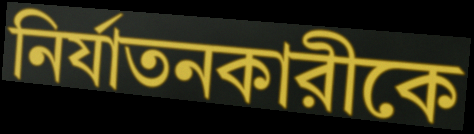
নির্যাতনকারীকে